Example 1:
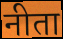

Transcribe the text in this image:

नीता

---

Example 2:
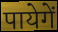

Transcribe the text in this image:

पायेगें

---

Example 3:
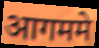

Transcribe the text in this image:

आगममे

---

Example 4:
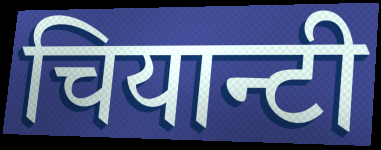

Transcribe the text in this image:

चियान्टी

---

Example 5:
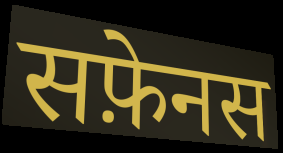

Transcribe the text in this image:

सफ़ेनस